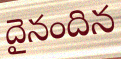
దైనందిన